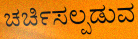
ಚರ್ಚಿಸಲ್ಪಡುವ